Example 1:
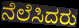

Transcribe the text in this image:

ನೆಲೆಸಿದರು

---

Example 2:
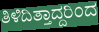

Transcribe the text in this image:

ತಿಳಿದಿತ್ತಾದ್ದರಿಂದ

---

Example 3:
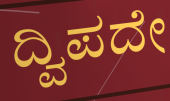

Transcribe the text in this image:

ದ್ವಿಪದೇ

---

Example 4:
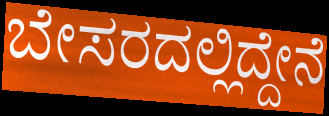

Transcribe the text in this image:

ಬೇಸರದಲ್ಲಿದ್ದೇನೆ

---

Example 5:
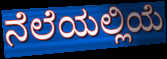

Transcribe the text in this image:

ನೆಲೆಯಲ್ಲಿಯೆ